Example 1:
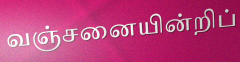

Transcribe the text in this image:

வஞ்சனையின்றிப்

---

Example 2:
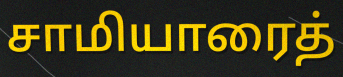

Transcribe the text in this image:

சாமியாரைத்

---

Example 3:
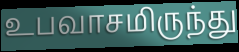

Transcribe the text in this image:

உபவாசமிருந்து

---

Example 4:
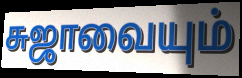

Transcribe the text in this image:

சுஜாவையும்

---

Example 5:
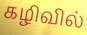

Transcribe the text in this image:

கழிவில்